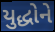
યુદ્ધોને